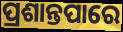
ପ୍ରଶାନ୍ତପାରେ